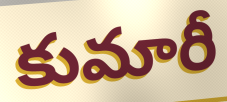
కుమారీ